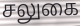
சலுகை